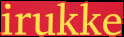
irukke